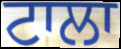
ਟਾਲਾ